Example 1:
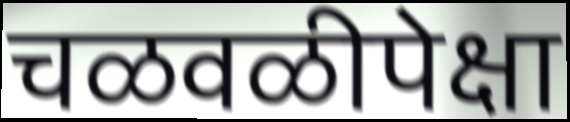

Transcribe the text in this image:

चळवळीपेक्षा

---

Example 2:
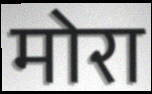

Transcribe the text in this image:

मोरा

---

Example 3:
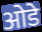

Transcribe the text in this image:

ओडे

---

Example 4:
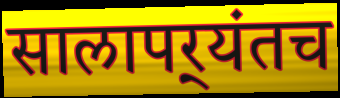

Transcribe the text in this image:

सालापर्यंतच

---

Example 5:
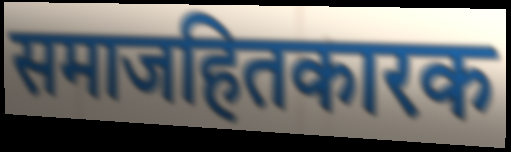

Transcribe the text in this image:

समाजहितकारक